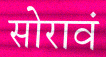
सोरावं